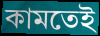
কামতেই